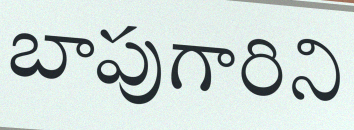
బాపుగారిని